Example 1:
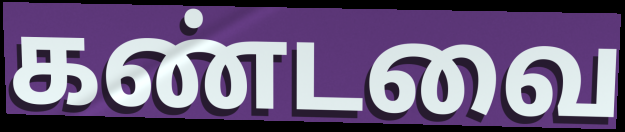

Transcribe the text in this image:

கண்டவை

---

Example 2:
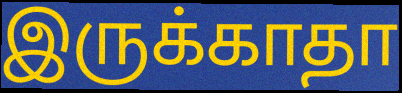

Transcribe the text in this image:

இருக்காதா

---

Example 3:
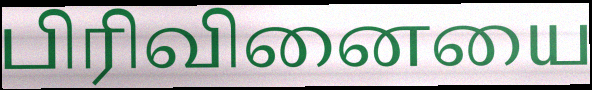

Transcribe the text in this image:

பிரிவினையை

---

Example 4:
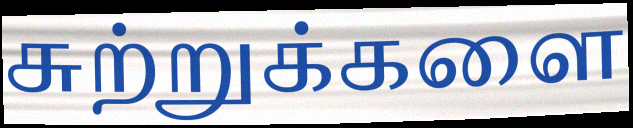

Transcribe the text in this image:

சுற்றுக்களை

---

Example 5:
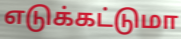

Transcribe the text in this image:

எடுக்கட்டுமா